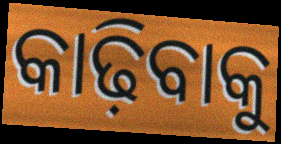
କାଢ଼ିବାକୁ